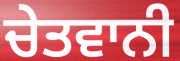
ਚੇਤਵਾਨੀ